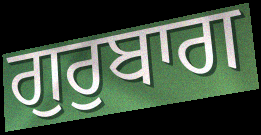
ਗੁਰੁਬਾਗ